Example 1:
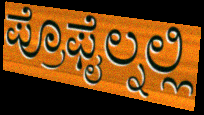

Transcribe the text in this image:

ಪ್ರೊಫೈಲ್ನಲ್ಲಿ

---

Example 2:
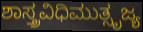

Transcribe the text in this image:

ಶಾಸ್ತ್ರವಿಧಿಮುತ್ಸೃಜ್ಯ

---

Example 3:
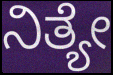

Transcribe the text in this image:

ನಿತ್ಯೇ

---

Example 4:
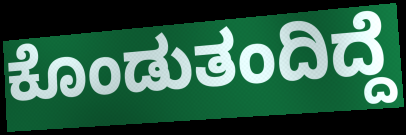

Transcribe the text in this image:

ಕೊಂಡುತಂದಿದ್ದೆ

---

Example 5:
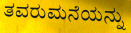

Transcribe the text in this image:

ತವರುಮನೆಯನ್ನು